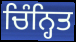
ਚਿੰਨ੍ਹਿਤ